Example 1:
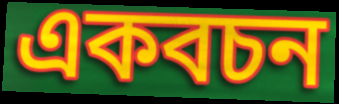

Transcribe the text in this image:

একবচন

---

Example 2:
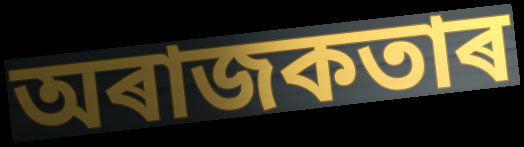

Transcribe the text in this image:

অৰাজকতাৰ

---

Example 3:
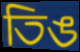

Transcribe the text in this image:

তিঙ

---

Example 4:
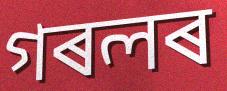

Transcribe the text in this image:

গৰলৰ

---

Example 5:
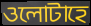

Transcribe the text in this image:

ওলোটাহে